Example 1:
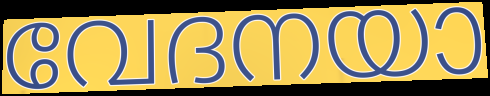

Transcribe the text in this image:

വേദനയാ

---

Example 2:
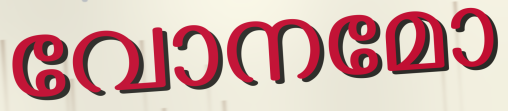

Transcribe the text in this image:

വോനമോ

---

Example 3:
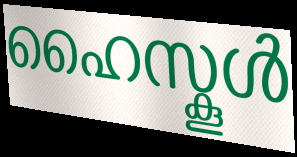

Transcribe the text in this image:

ഹൈസ്കൂൾ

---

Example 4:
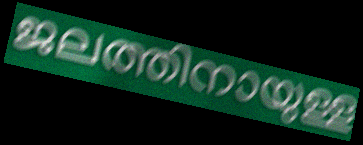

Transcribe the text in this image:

ജലത്തിനായുള്ള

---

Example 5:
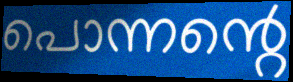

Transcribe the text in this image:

പൊന്നന്റെ